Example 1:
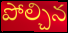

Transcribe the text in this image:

పోల్చిన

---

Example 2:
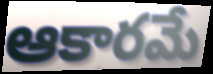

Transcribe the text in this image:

ఆకారమే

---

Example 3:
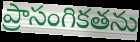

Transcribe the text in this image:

ప్రాసంగికతను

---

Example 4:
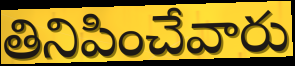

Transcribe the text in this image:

తినిపించేవారు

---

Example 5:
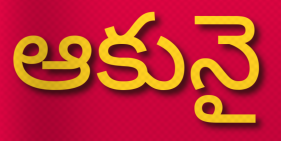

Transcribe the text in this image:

ఆకునై